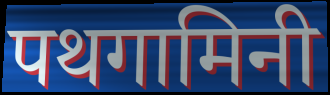
पथगामिनी